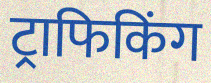
ट्राफिकिंग